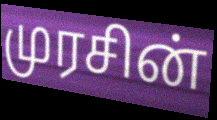
முரசின்